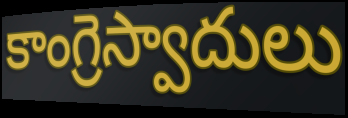
కాంగ్రెస్వాదులు